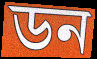
ডন